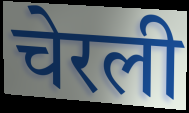
चेरली